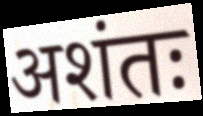
अशंतः